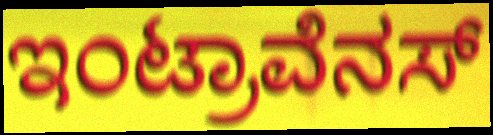
ಇಂಟ್ರಾವೆನಸ್